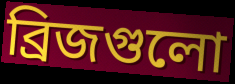
ব্রিজগুলো